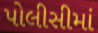
પોલીસીમાં